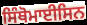
ਸਿੰਥੋਮਾਈਸਿਨ